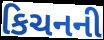
કિચનની